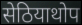
सेठियाथोप